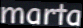
marta